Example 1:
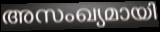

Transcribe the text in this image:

അസംഖ്യമായി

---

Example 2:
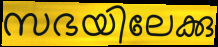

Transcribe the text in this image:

സഭയിലേക്കു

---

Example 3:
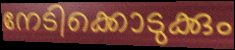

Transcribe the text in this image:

നേടിക്കൊടുക്കും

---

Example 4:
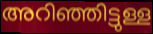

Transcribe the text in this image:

അറിഞ്ഞിട്ടുള്ള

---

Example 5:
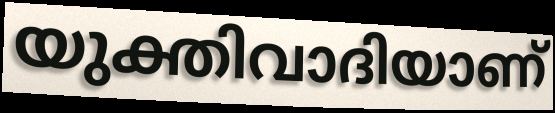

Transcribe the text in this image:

യുക്തിവാദിയാണ്